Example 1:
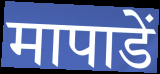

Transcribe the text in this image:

मापाडें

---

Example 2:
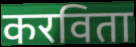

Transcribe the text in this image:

करविता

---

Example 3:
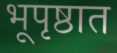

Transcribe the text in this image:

भूपृष्ठात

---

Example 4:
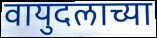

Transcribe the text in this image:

वायुदलाच्या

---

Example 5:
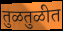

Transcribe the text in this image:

तुळतुळीत